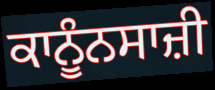
ਕਾਨੂੰਨਸਾਜ਼ੀ